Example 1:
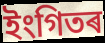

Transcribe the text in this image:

ইংগিতৰ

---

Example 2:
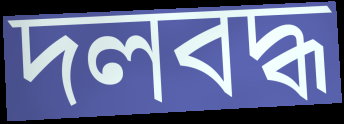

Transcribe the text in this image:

দলবদ্ধ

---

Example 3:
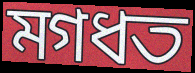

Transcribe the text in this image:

মগধত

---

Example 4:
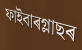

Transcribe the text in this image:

ফাইবাৰগ্লাছৰ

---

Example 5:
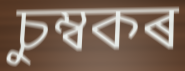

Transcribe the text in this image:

চুম্বকৰ